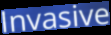
Invasive